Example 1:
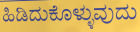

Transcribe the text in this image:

ಹಿಡಿದುಕೊಳ್ಳುವುದು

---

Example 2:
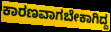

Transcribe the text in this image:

ಕಾರಣವಾಗಬೇಕಾಗಿದ್ದ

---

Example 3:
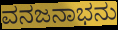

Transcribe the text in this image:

ವನಜನಾಭನು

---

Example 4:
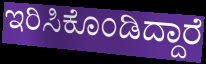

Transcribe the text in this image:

ಇರಿಸಿಕೊಂಡಿದ್ದಾರೆ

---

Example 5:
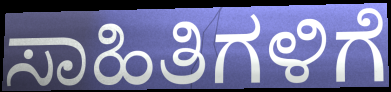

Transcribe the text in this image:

ಸಾಹಿತಿಗಳಿಗೆ